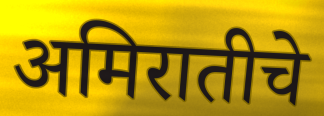
अमिरातीचे